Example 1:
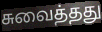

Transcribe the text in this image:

சுவைத்தது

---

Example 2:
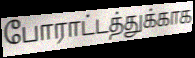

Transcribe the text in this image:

போராட்டத்துக்காக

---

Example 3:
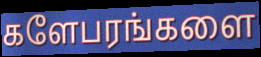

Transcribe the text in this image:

களேபரங்களை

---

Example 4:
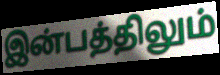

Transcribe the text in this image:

இன்பத்திலும்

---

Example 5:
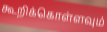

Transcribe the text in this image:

கூறிக்கொள்ளவும்